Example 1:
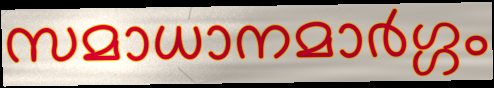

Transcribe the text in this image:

സമാധാനമാർഗ്ഗം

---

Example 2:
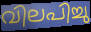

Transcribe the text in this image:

വിലപിച്ചു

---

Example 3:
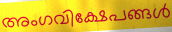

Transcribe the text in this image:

അംഗവിക്ഷേപങ്ങൾ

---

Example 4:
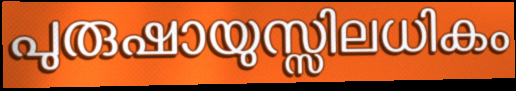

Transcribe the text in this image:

പുരുഷായുസ്സിലധികം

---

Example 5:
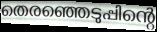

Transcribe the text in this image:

തെരഞ്ഞെടുപ്പിന്റെ